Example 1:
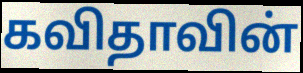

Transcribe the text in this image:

கவிதாவின்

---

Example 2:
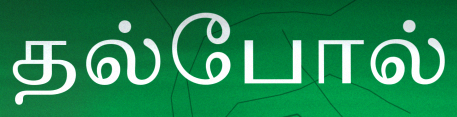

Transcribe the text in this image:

தல்போல்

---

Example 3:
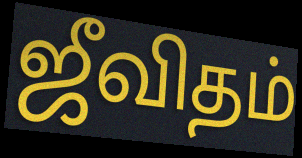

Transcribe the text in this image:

ஜீவிதம்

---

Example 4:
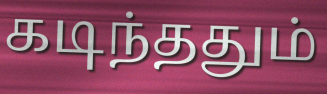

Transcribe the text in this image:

கடிந்ததும்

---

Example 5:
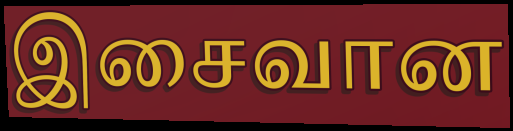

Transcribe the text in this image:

இசைவான